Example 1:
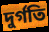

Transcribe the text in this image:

দুৰ্গতি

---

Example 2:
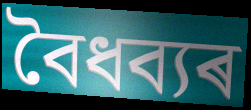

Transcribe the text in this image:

বৈধব্যৰ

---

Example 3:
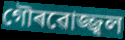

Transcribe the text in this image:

গৌৰৱোজ্জ্বল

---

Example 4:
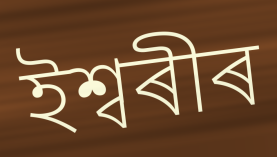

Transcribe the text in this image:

ইশ্বৰীৰ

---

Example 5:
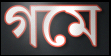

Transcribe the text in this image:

গমে